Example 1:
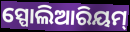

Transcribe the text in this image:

ସ୍ପୋଲିଆରିୟମ୍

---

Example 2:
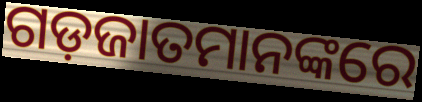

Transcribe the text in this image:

ଗଡ଼ଜାତମାନଙ୍କରେ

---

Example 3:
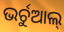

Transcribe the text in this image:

ଭର୍ଚୁଆଲ୍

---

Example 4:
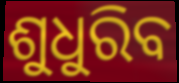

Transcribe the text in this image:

ଶୁଧୁରିବ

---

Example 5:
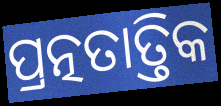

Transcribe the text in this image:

ପ୍ରତ୍ନତାତ୍ତିକ